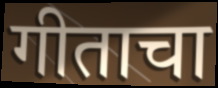
गीताचा